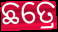
ଛତ୍ରେ